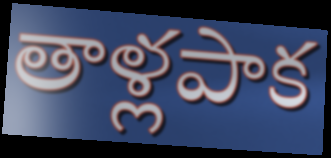
తాళ్లపాక